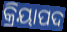
କ୍ରିୟାପଦ